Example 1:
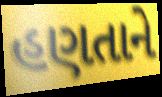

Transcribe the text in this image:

હણતાને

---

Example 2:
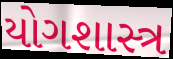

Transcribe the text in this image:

યોગશાસ્‍ત્ર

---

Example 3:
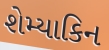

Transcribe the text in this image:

શેમ્યાકિન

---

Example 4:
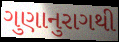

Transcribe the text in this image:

ગુણાનુરાગથી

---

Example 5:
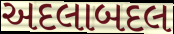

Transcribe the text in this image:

અદલાબદલ